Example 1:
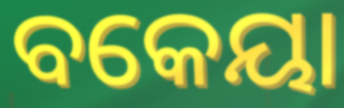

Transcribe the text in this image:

ବକେୟା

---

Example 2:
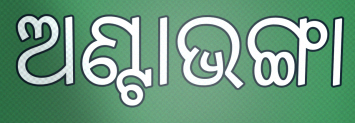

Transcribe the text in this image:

ଅଣ୍ଟାଭଙ୍ଗା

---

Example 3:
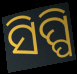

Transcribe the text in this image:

ସିପ୍ପି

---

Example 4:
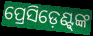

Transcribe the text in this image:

ପ୍ରେସିଡ଼େଣ୍ଟ୍‍ଙ୍କ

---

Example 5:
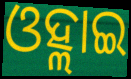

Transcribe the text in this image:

ଓହ୍ଲାଇ